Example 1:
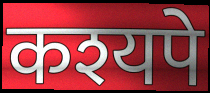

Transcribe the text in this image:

कश्यपे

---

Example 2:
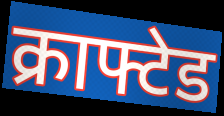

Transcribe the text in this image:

क्राफ्टेड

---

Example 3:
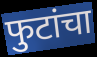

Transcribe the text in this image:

फुटांचा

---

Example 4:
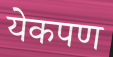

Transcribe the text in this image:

येकपण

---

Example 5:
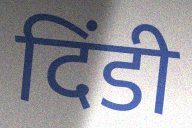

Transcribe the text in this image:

दिंडी